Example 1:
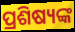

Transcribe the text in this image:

ପ୍ରଶିଷ୍ୟଙ୍କ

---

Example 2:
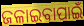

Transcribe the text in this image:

ଜଳାଇବାପାଇଁ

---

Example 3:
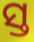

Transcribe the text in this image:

ସ୍ତ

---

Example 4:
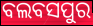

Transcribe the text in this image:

ବଲବସପୁର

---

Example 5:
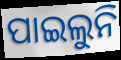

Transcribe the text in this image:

ପାଇଲୁନି